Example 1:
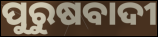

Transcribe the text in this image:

ପୁରୁଷବାଦୀ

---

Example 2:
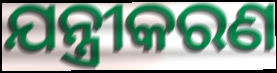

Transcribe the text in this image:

ଯନ୍ତ୍ରୀକରଣ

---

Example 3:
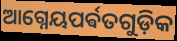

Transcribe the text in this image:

ଆଗ୍ନେୟପର୍ଵତଗୁଡ଼ିକ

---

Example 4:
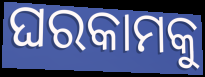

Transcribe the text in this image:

ଘରକାମକୁ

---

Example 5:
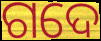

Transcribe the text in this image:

ଗଦେ